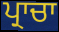
ਪ੍ਰਾਚਾ